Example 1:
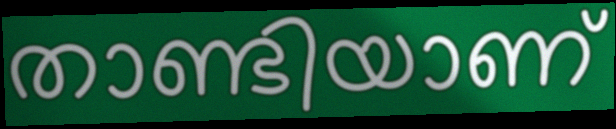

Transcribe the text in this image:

താണ്ടിയാണ്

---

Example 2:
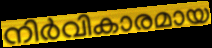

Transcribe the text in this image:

നിർവികാരമായ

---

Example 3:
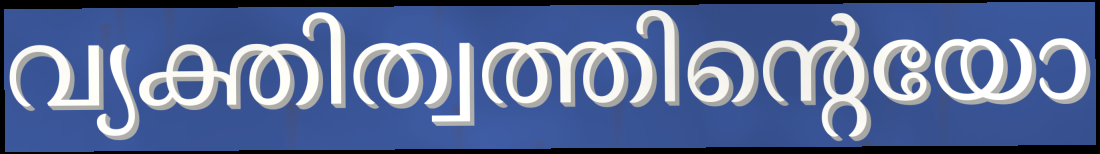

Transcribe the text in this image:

വ്യക്തിത്വത്തിന്റെയോ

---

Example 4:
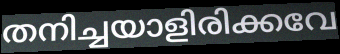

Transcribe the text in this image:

തനിച്ചയാളിരിക്കവേ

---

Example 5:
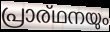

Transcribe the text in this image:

പ്രാര്ഥനയും